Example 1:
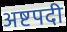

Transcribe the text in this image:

अष्टपदी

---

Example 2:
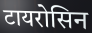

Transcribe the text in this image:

टायरोसिन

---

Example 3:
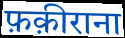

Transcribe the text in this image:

फ़क़ीराना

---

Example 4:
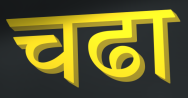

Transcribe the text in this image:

चढा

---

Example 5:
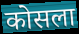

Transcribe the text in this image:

कोसला